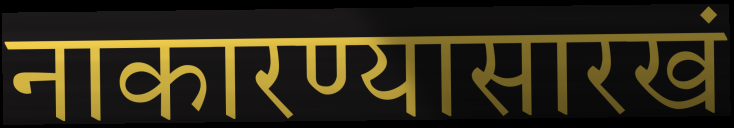
नाकारण्यासारखं